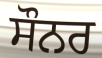
ਸੌਨਰ